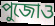
পুজোও